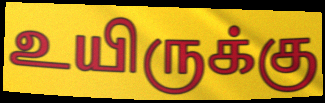
உயிருக்கு